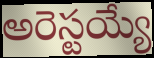
అరెస్టయ్యే